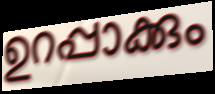
ഉറപ്പാക്കും